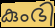
കുംഭി